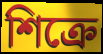
শিক্রে